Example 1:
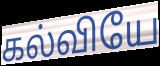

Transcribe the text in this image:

கல்வியே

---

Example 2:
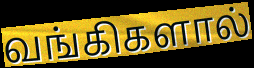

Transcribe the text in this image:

வங்கிகளால்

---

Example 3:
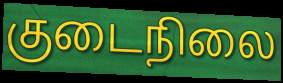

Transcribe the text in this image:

குடைநிலை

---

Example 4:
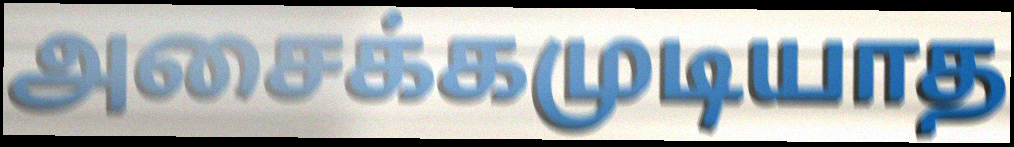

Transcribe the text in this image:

அசைக்கமுடியாத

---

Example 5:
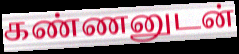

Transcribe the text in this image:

கண்ணனுடன்